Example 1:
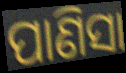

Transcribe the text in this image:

ପାଣିସା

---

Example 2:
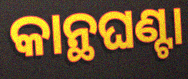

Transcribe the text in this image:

କାନ୍ଥଘଣ୍ଟା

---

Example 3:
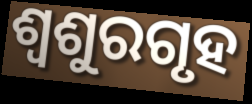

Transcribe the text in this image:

ଶ୍ୱଶୁରଗୃହ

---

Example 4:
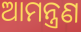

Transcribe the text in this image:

ଆମନ୍ତ୍ରଣ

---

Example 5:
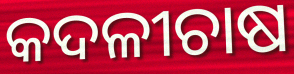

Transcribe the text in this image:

କଦଳୀଚାଷ